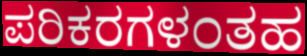
ಪರಿಕರಗಳಂತಹ